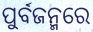
ପୁର୍ବଜନ୍ମରେ